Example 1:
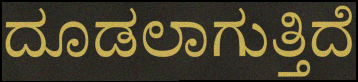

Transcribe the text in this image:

ದೂಡಲಾಗುತ್ತಿದೆ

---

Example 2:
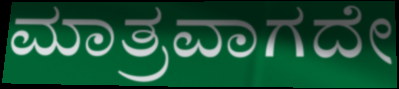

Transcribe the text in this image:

ಮಾತ್ರವಾಗದೇ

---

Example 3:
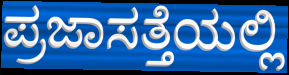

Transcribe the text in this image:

ಪ್ರಜಾಸತ್ತೆಯಲ್ಲಿ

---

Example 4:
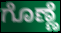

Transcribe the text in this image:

ಗೊಣ್ಣೆ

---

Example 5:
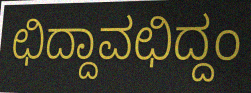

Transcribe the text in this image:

ಛಿದ್ದಾವಛಿದ್ದಂ